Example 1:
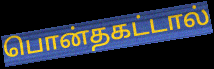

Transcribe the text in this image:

பொன்தகட்டால்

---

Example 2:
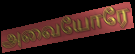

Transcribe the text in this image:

அவையோரே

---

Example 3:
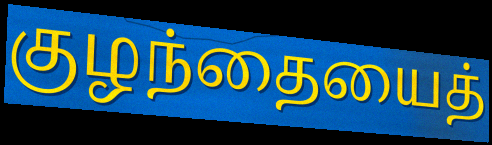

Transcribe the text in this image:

குழந்தையைத்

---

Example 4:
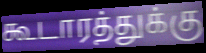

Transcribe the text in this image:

கூடாரத்துக்கு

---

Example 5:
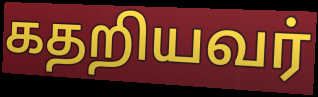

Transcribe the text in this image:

கதறியவர்